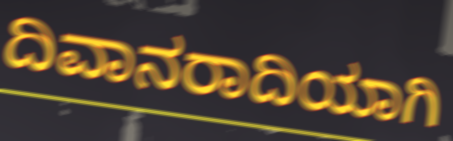
ದಿವಾನರಾದಿಯಾಗಿ